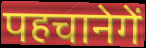
पहचानेगें